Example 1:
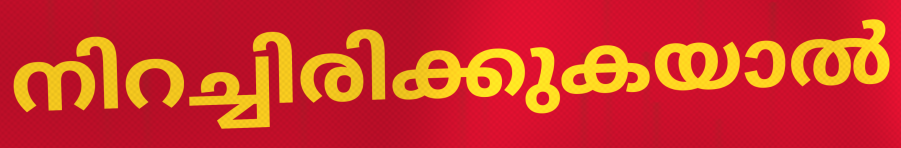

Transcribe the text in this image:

നിറച്ചിരിക്കുകയാൽ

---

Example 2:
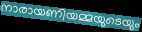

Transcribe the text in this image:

നാരായണിയമ്മയുടെയും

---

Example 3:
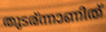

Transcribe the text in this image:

തുടര്ന്നാണിത്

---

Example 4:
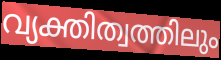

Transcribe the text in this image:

വ്യക്തിത്വത്തിലും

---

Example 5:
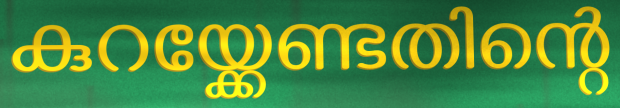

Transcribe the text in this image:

കുറയ്ക്കേണ്ടതിന്റെ